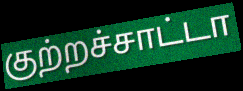
குற்றச்சாட்டா